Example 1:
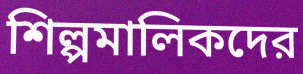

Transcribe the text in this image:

শিল্পমালিকদের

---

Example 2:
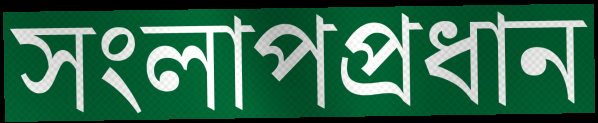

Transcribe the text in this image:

সংলাপপ্রধান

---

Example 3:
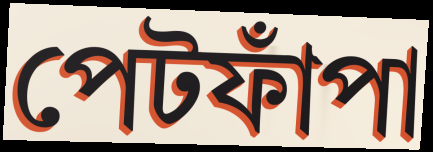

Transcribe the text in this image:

পেটফাঁপা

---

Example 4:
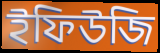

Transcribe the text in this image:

ইফিউজি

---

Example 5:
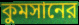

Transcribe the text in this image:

কুমসানের